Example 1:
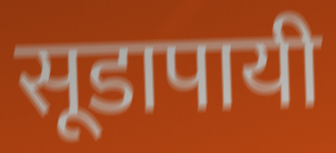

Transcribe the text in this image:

सूडापायी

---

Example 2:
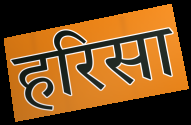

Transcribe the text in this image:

हरिसा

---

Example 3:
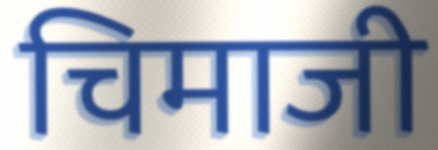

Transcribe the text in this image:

चिमाजी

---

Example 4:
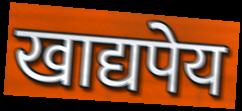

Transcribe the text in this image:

खाद्यपेय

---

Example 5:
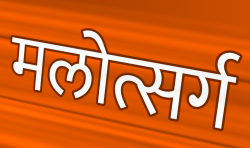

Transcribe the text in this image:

मलोत्सर्ग